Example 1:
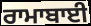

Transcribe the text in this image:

ਰਾਮਾਬਾਈ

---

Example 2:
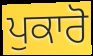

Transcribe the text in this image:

ਪੁਕਾਰੋ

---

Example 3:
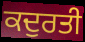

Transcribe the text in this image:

ਕਦੁਰਤੀ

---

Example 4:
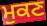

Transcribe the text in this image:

ਮੁਕਣ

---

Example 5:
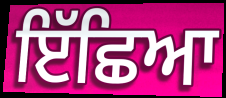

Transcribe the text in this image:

ਇੱਛਿਆ